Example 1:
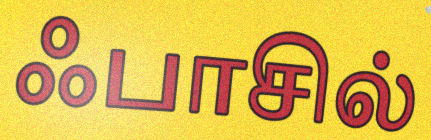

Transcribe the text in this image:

ஃபாசில்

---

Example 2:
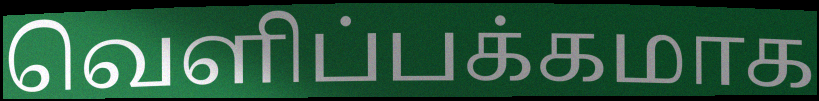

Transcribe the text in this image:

வெளிப்பக்கமாக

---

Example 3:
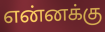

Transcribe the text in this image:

என்னக்கு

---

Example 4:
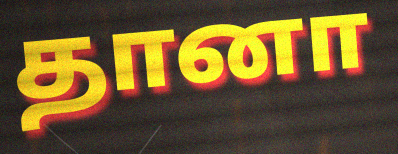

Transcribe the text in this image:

தானா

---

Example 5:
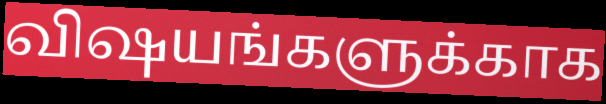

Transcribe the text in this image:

விஷயங்களுக்காக